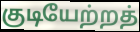
குடியேற்றத்